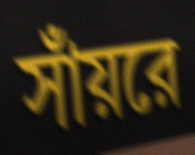
সাঁয়রে